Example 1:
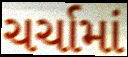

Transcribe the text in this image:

ચર્ચામાં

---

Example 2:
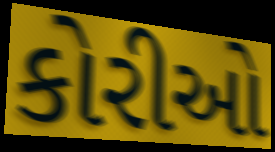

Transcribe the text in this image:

કોરીઓ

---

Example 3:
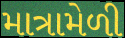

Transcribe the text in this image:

માત્રામેળી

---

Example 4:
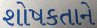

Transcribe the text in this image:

શોષકતાને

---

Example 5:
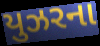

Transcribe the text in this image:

યુઝરના